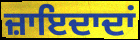
ਜ਼ਾਇਦਾਦਾਂ